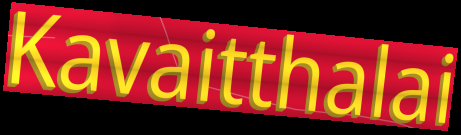
Kavaitthalai